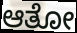
ಆತೋ